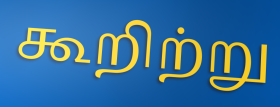
கூறிற்று